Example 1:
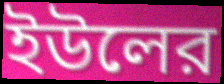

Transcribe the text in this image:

ইউলের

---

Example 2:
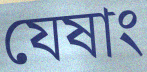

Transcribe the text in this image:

যেষাং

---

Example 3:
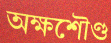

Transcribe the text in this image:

অক্ষশৌণ্ড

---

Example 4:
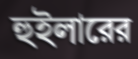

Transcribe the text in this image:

হুইলারের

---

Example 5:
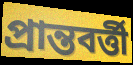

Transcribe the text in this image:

প্রান্তবর্ত্তী